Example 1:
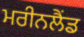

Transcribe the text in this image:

ਮਰੀਨਲੈਂਡ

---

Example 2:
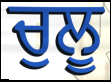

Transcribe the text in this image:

ਚੁਲੂ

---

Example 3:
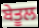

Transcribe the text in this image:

ਬੇਤੂਲ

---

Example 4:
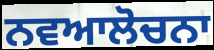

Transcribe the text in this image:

ਨਵਆਲੋਚਨਾ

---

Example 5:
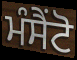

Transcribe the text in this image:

ਮੰਸੈਂਟੋ